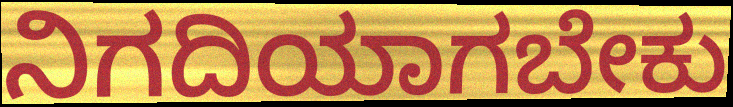
ನಿಗದಿಯಾಗಬೇಕು